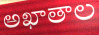
అఖాతాల